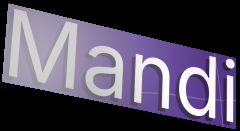
Mandi